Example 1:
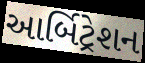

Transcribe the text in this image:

આર્બિટ્રેશન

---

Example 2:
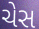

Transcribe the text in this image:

ચેસ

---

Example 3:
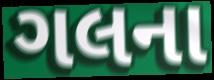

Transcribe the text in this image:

ગલના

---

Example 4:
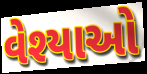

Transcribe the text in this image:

વેશ્યાઓ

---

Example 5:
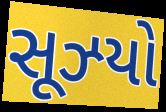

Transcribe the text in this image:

સૂઝ્યો